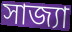
সাজ্যা